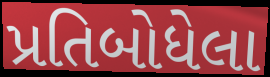
પ્રતિબોધેલા